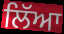
ਲਿੱਆ